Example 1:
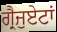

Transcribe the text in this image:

ਗ੍ਰੈਜੁਏਟਾਂ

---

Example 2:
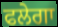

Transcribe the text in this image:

ਫਲੇਗਾ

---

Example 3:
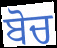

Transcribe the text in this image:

ਬੋਚ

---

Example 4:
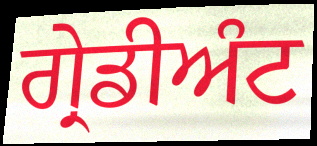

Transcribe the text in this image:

ਗ੍ਰੇਡੀਅੰਟ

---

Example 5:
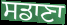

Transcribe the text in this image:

ਸਡਾਣਾ